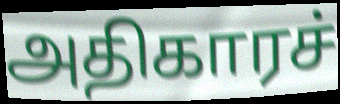
அதிகாரச்